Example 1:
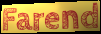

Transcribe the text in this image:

Farend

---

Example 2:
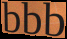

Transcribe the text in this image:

bbb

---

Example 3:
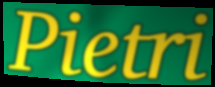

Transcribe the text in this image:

Pietri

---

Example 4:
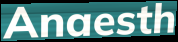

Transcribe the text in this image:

Anaesth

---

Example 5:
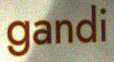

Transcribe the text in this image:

gandi